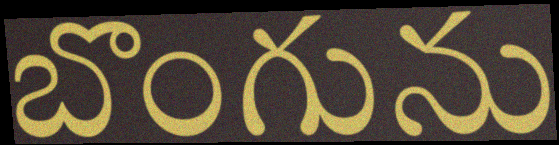
బొంగును